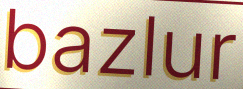
bazlur